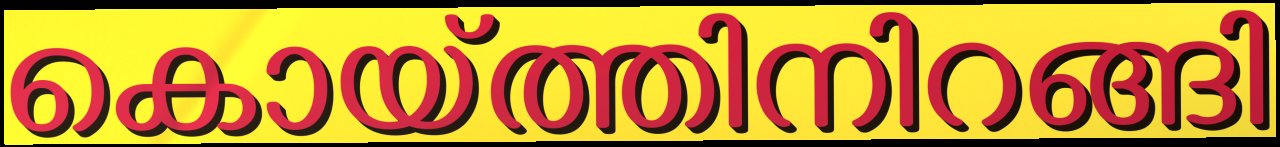
കൊയ്ത്തിനിറങ്ങി